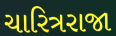
ચારિત્રરાજા